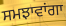
ਸਮਝਾਵਾਂਗਾ